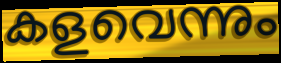
കളവെന്നും